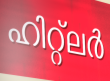
ഹിറ്റ്ലർ